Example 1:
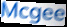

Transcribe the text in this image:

Mcgee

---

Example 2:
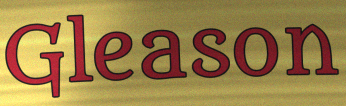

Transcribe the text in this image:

Gleason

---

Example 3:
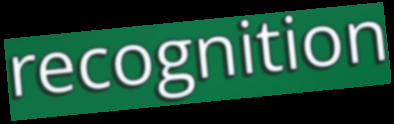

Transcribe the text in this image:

recognition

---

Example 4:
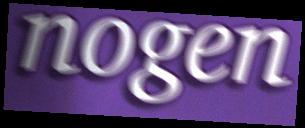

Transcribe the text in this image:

nogen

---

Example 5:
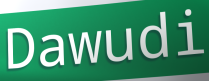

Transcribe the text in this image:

Dawudi